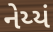
નેય્યં